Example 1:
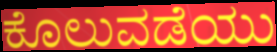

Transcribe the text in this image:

ಕೊಲುವಡೆಯು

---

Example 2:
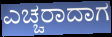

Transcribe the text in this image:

ಎಚ್ಚರಾದಾಗ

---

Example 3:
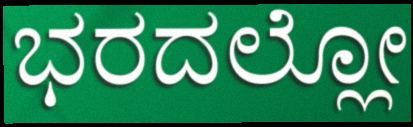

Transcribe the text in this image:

ಭರದಲ್ಲೋ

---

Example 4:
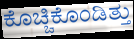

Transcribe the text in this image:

ಕೊಚ್ಚಿಕೊಂಡಿತ್ತು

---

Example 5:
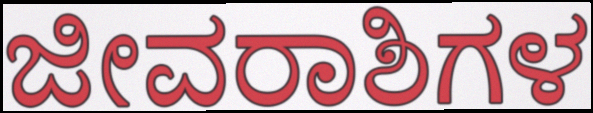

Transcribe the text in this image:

ಜೀವರಾಶಿಗಳ